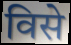
विसे